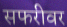
सफरीवर